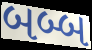
બબ્બ